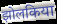
झोलकिया